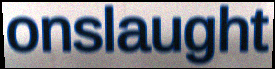
onslaught